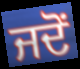
ਜਦੋਂ